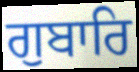
ਗੁਬਾਰਿ